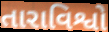
તારાવિશ્વો